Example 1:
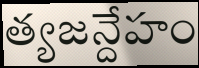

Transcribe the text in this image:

త్యజన్దేహం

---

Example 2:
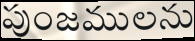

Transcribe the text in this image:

పుంజములను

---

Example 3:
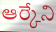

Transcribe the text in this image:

ఆర్కేని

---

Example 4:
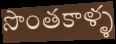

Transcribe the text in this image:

సొంతకాళ్ళ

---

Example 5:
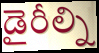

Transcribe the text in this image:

డైరీల్ని